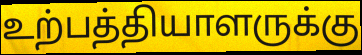
உற்பத்தியாளருக்கு